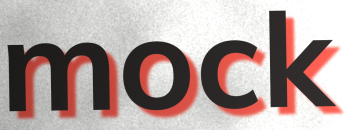
mock